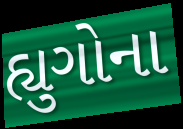
હ્યુગોના